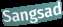
Sangsad